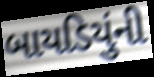
બાયડિયુંની